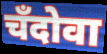
चँदोवा